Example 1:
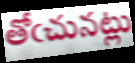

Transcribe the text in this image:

తోఁచునట్లు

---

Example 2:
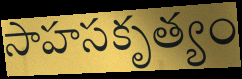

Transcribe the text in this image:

సాహసకృత్యం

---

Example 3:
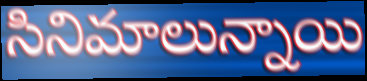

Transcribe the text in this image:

సినిమాలున్నాయి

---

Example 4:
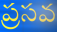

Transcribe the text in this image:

ప్రసవ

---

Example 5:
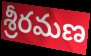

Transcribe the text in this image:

శ్రీరమణ